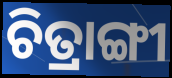
ଚିତ୍ରାଙ୍ଗୀ